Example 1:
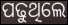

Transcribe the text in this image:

ପଢୁଥିଲେ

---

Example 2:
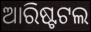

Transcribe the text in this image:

ଆରିଷ୍ଟଟଲ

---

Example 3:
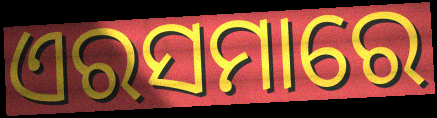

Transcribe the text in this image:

ଏରସମାରେ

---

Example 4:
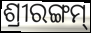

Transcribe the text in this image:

ଶ୍ରୀରଙ୍ଗମ୍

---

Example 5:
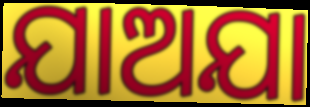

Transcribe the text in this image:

ଯାଅଯା